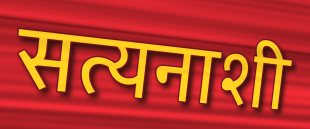
सत्यनाशी